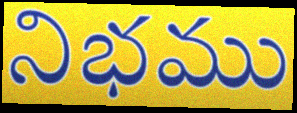
నిభము